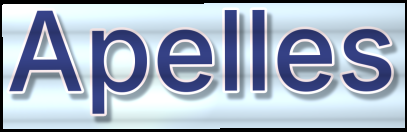
Apelles